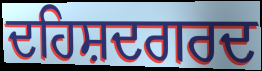
ਦਹਿਸ਼ਦਗਰਦ